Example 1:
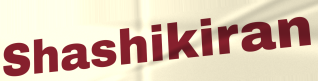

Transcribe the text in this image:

Shashikiran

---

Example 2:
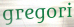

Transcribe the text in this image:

gregori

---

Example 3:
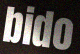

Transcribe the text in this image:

bido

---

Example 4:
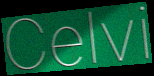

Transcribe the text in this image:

Celvi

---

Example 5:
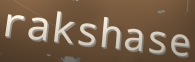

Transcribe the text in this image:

rakshase